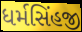
ધર્મસિંહજી